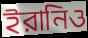
ইরানিও